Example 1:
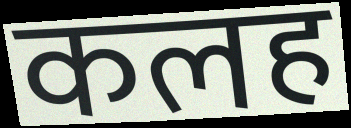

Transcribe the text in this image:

कलह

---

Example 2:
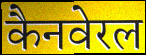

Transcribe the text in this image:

कैनवेरल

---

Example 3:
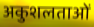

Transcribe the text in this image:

अकुशलताओं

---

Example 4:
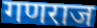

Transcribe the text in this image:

गणराज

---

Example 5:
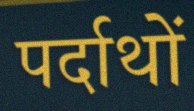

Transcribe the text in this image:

पर्दाथों